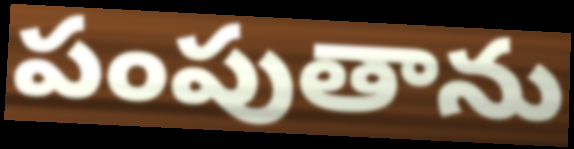
పంపుతాను